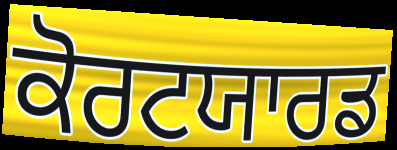
ਕੋਰਟਯਾਰਡ